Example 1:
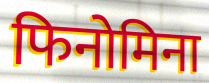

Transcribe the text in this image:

फिनोमिना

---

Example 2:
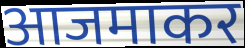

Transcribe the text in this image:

आजमाकर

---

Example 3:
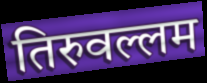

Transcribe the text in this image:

तिरुवल्लम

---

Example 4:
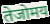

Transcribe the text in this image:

तेजोमय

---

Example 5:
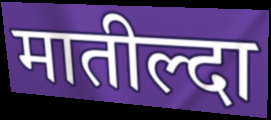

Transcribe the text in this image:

मातील्‍दा